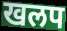
खलप